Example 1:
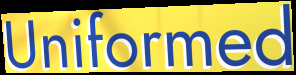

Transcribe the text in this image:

Uniformed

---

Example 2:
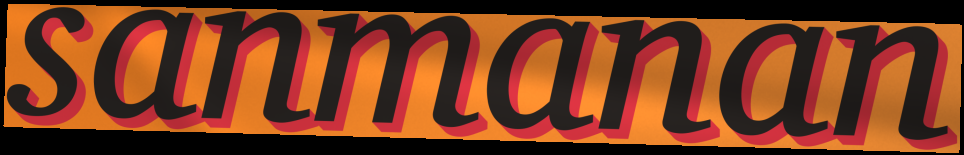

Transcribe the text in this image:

sanmanan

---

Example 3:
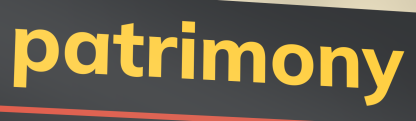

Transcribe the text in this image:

patrimony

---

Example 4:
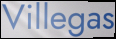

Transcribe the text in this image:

Villegas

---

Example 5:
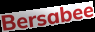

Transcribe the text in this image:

Bersabee